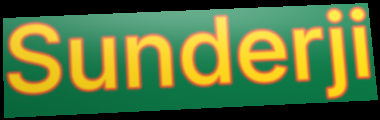
Sunderji